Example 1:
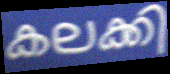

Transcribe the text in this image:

കലക്കി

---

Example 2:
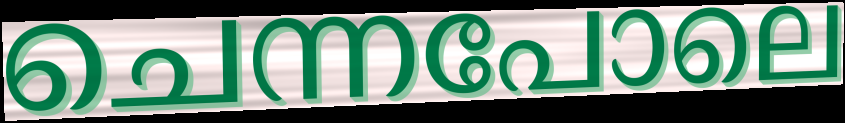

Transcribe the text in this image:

ചെന്നപോലെ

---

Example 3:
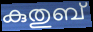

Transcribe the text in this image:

കുതുബ്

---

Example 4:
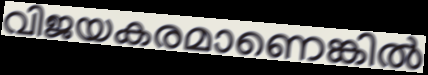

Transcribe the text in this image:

വിജയകരമാണെങ്കിൽ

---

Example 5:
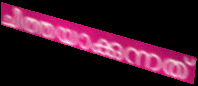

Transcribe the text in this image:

ചീത്തയാക്കുന്നത്